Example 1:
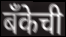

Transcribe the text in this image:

बँकेची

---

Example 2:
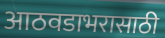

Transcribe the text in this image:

आठवडाभरासाठी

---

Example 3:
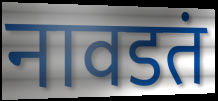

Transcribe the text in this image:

नावडतं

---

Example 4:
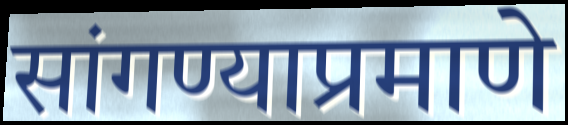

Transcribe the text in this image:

सांगण्याप्रमाणे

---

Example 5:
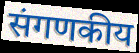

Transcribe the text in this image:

संगणकीय